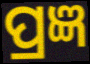
ପ୍ରଜ୍ଞ